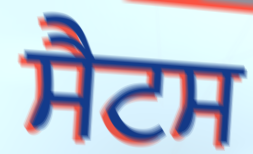
ਸੈਟਸ